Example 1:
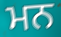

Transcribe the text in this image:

ਮਨ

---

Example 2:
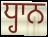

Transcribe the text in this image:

ਧ੍ਹਾਨ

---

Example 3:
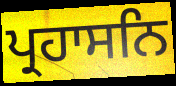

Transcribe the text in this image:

ਪ੍ਰਹਾਸਨਿ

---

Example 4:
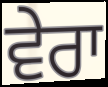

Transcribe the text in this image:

ਵੇਰਾ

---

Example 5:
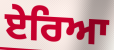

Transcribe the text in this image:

ਏਰਿਆ